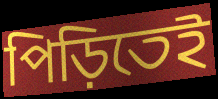
পিড়িতেই